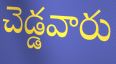
చెడ్డవారు